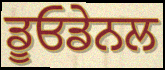
ਡੂਓਡੇਨਲ